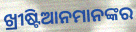
ଖ୍ରୀଷ୍ଟିଆନମାନଙ୍କର